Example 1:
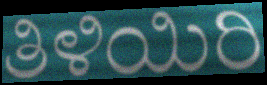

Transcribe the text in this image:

ತಿಳಿಯಿರಿ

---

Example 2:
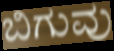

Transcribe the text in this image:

ಬಿಗುವು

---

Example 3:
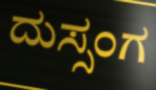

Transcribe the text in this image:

ದುಸ್ಸಂಗ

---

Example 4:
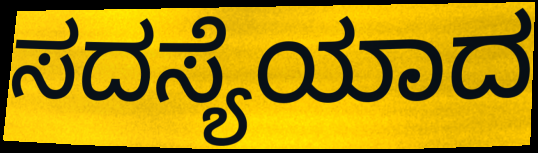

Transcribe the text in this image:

ಸದಸ್ಯೆಯಾದ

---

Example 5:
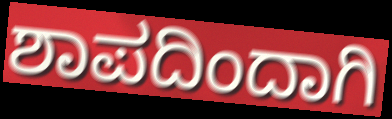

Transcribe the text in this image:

ಶಾಪದಿಂದಾಗಿ